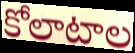
కోలాటాల